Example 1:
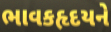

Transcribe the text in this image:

ભાવકહૃદયને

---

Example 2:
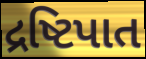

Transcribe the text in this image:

દ્રષ્ટિપાત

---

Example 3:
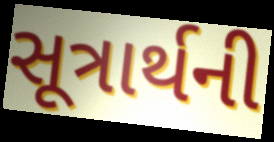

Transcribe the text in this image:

સૂત્રાર્થની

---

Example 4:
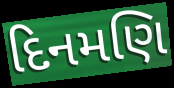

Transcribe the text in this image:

દિનમણિ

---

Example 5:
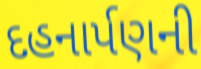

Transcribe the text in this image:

દહનાર્પણની